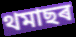
থমাছৰ